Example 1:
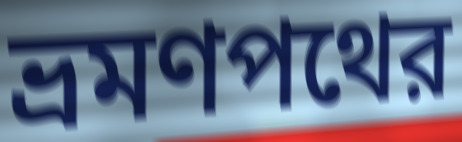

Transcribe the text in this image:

ভ্রমণপথের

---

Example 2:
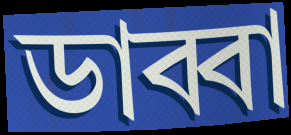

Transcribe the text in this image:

ডাব্বা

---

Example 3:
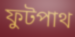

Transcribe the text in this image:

ফুটপাথ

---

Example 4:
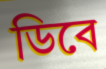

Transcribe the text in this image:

ডিবে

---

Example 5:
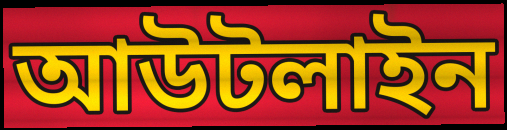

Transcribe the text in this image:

আউটলাইন